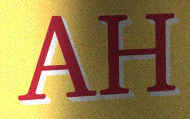
AH